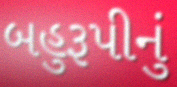
બહુરૂપીનું